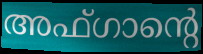
അഫ്ഗാന്റെ